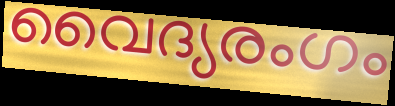
വൈദ്യരംഗം